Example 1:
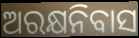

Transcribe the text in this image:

ଅରକ୍ଷନିବାସ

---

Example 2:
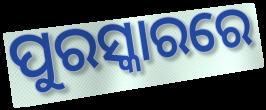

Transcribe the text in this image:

ପୁରସ୍କାରରେ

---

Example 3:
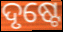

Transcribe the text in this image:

ଦୃଷ୍ଟେ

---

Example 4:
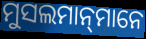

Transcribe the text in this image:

ମୁସଲମାନ୍‌ମାନେ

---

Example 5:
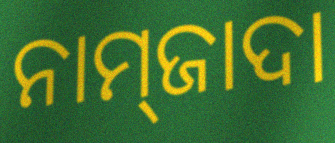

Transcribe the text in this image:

ନାମ୍‍ଜାଦା